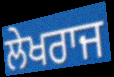
ਲੇਖਰਾਜ